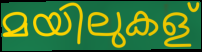
മയിലുകള്